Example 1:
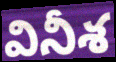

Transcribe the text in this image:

వినీశ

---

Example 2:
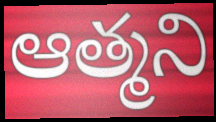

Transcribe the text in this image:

ఆత్మని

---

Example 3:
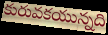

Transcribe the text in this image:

కురువకయున్నది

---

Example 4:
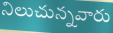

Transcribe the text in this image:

నిలుచున్నవారు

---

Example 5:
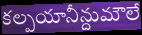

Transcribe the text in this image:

కల్పయానీన్దుమౌలే